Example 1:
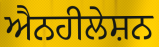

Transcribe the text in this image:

ਐਨਹੀਲੇਸ਼ਨ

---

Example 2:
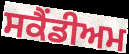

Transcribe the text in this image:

ਸਕੈਂਡੀਅਮ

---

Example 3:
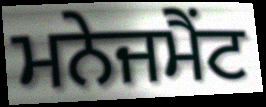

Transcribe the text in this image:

ਮਨੇਜਮੈਂਟ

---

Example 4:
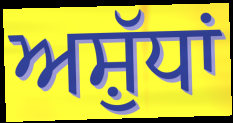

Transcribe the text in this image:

ਅਸ਼ੁੱਧਾਂ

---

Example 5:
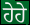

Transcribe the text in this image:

ਹੇਹੇ